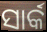
ସାର୍କ